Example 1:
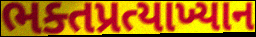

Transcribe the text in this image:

ભક્તપ્રત્યાખ્યાન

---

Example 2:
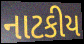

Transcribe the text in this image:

નાટકીય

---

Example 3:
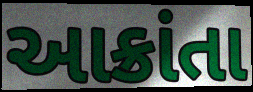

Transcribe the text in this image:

આક્રાંતા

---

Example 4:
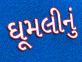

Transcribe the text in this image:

ઘૂમલીનું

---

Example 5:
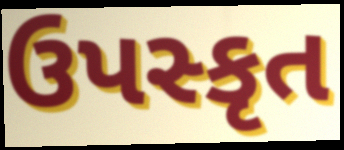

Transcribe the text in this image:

ઉપસ્કૃત